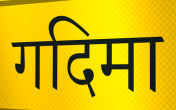
गदिमा